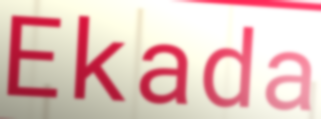
Ekada